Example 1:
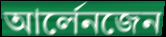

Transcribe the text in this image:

আৰ্লেনজেন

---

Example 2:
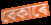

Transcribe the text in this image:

বেকাৰে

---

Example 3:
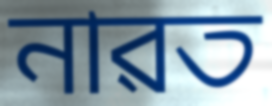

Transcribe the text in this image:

নাৱত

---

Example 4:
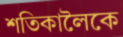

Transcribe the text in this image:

শতিকালৈকে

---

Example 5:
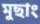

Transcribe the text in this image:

মুছাং